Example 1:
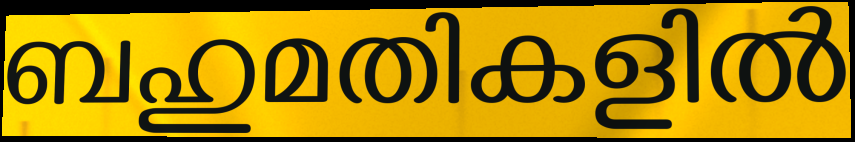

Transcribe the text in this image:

ബഹുമതികളിൽ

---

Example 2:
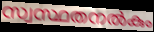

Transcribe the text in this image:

സ്വസ്ഥതനൽകും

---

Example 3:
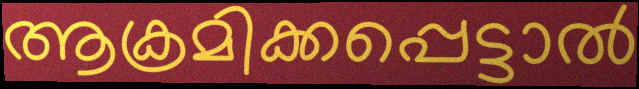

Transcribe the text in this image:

ആക്രമിക്കപ്പെട്ടാൽ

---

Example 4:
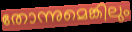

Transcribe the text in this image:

തോന്നുമെങ്കിലും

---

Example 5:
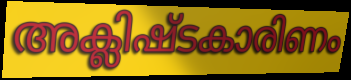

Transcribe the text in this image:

അക്ലിഷ്ടകാരിണം